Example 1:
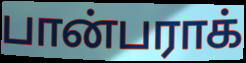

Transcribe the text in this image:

பான்பராக்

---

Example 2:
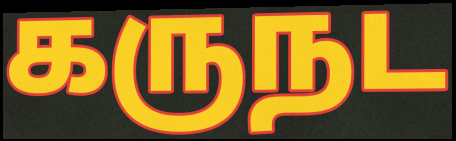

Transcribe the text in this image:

கருநட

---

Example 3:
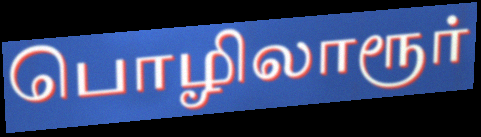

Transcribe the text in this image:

பொழிலாரூர்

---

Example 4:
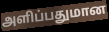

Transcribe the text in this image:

அளிப்பதுமான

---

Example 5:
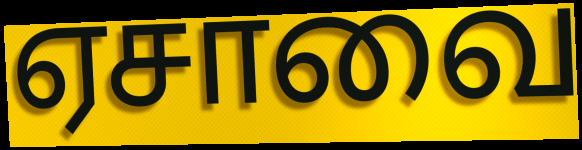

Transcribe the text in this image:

ஏசாவை